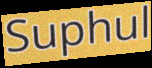
Suphul